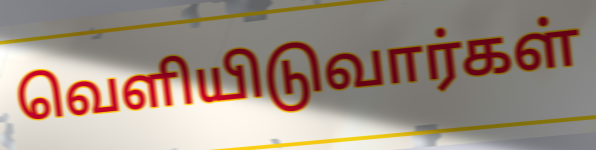
வெளியிடுவார்கள்